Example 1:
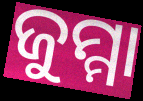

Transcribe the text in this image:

ଜୁମ୍ମା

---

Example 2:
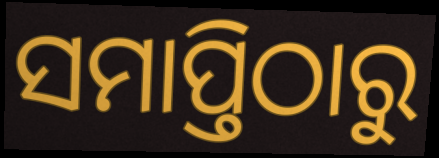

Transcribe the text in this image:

ସମାପ୍ତିଠାରୁ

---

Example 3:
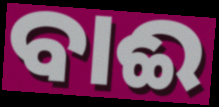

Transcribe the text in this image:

ବାଈ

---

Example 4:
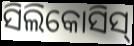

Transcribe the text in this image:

ସିଲିକୋସିସ୍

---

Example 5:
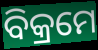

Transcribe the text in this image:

ବିକ୍ରମେ